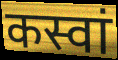
कस्वां